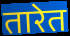
तारेत